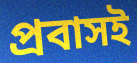
প্রবাসই